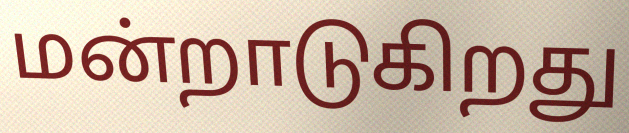
மன்றாடுகிறது